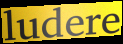
ludere